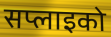
सप्लाइको